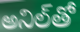
అనిల్‌తో